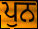
ਪੁਨ